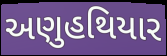
અણુહથિયાર